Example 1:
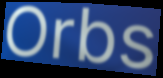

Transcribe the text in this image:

Orbs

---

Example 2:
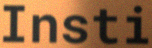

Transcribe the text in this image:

Insti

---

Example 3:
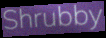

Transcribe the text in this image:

Shrubby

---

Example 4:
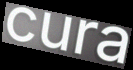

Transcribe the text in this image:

cura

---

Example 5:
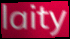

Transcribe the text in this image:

laity